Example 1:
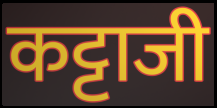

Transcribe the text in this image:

कट्टाजी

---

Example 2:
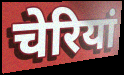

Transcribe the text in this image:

चेरियां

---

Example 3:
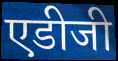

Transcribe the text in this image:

एडीजी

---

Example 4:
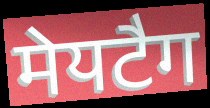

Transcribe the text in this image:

मेयटैग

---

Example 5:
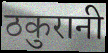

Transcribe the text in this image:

ठकुरानी